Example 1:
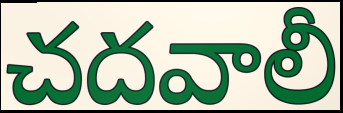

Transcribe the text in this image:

చదవాలీ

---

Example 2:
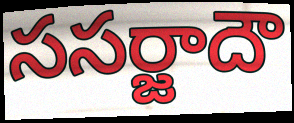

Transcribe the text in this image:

ససర్జాదౌ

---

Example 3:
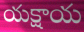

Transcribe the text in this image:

యక్షాయ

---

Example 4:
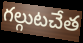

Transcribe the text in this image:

గల్గుటచేత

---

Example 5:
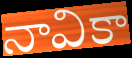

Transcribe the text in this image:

నావికా